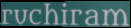
ruchiram